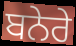
ਬਨੇਰੇ